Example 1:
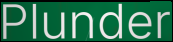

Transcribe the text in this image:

Plunder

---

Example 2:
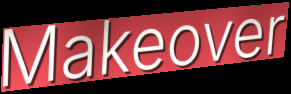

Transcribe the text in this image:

Makeover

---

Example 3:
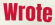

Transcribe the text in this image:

Wrote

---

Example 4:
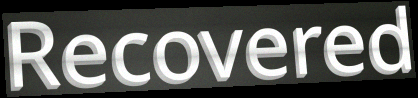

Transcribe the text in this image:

Recovered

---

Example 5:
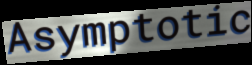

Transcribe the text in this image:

Asymptotic